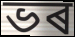
ভৰ